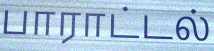
பாராட்டல்